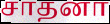
சாதனா